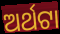
ଅର୍ଥଟା